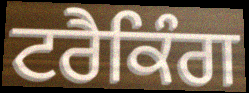
ਟਰੈਕਿੰਗ